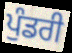
ਪੁੰਡਰੀ